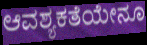
ಆವಶ್ಯಕತೆಯೇನೂ